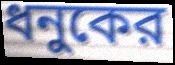
ধনুকের